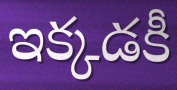
ఇక్కడకీ